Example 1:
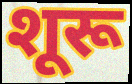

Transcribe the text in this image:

शूरू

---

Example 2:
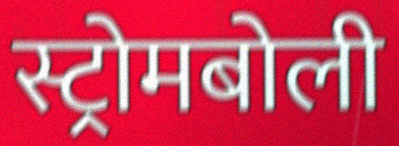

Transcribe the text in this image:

स्ट्रोमबोली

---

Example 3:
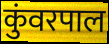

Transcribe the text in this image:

कुंवरपाल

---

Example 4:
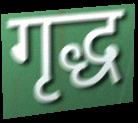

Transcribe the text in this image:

गृद्ध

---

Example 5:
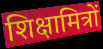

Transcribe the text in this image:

शिक्षामित्रों